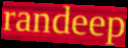
randeep